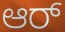
ಆರ್